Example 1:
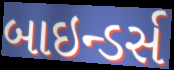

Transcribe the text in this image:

બાઇન્ડર્સ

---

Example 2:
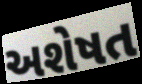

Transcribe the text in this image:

અશેષત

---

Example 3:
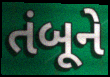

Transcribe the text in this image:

તંબૂને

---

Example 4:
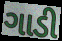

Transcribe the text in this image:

ગાડી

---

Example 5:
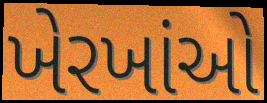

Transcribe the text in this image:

ખેરખાંઓ